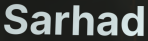
Sarhad